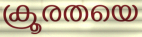
ക്രൂരതയെ